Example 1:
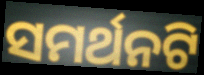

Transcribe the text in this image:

ସମର୍ଥନଟି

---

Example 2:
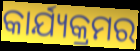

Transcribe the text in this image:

କାର୍ଯ୍ୟକ୍ରମର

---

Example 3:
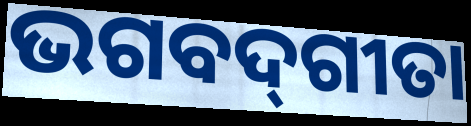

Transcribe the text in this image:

ଭଗବଦ୍‍ଗୀତା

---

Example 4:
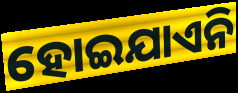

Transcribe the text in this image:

ହୋଇଯାଏନି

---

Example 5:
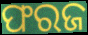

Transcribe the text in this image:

ଫରଜ